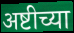
अष्टीच्या